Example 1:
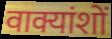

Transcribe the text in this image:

वाक्यांशों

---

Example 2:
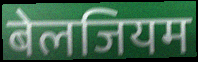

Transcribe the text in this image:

बेलजियम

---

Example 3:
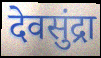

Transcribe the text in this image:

देवसुंद्रा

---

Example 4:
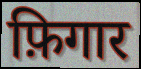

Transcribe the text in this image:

फ़िगार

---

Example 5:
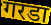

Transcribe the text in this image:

गरडा